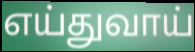
எய்துவாய்